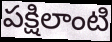
పక్షిలాంటి